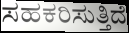
ಸಹಕರಿಸುತ್ತಿದೆ